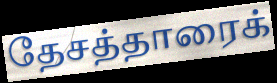
தேசத்தாரைக்